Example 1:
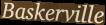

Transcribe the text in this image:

Baskerville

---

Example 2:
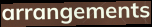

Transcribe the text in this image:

arrangements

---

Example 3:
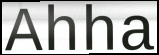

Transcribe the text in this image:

Ahha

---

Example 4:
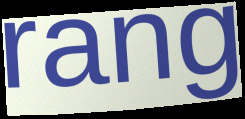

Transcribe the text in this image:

rang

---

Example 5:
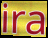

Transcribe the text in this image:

ira